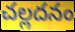
చల్లదనం